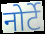
नोर्टे